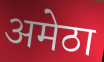
अमेठा